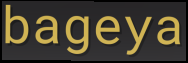
bageya